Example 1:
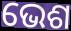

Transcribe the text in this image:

ଭେଶ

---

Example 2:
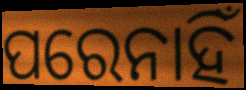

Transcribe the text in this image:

ପରେନାହିଁ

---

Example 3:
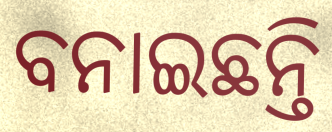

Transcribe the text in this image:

ବନାଇଛନ୍ତି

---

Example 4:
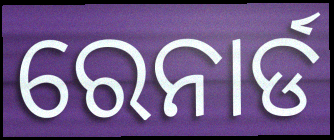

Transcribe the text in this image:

ରେନାର୍ଡ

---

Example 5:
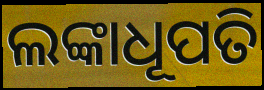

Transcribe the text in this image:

ଲଙ୍କାଧୂପତି